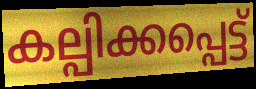
കല്പിക്കപ്പെട്ട്